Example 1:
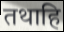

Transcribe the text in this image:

तथाहि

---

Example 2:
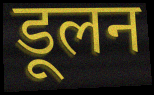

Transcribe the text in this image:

डूलन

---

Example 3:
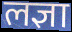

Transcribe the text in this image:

लज्ञा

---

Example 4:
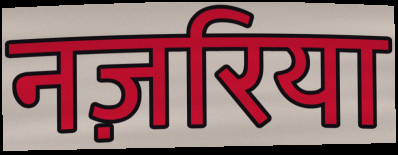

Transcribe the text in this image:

नज़रिया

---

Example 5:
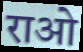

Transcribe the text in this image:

राओ